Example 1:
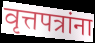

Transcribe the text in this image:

वृत्तपत्रांना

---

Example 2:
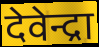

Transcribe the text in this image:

देवेन्द्रा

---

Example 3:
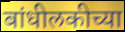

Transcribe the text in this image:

बांधीलकीच्या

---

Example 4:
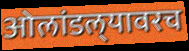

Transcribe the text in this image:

ओलांडल्यावरच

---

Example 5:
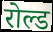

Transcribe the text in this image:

रोल्ड